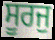
ਸੂਰਜੁ